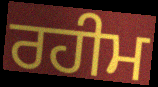
ਰਹੀਮ